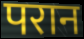
परान